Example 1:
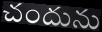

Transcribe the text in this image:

చందును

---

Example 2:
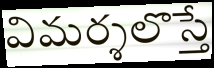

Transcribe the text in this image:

విమర్శలొస్తే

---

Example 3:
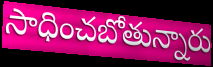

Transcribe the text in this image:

సాధించబోతున్నారు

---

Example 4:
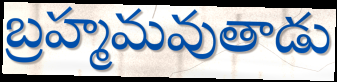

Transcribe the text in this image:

బ్రహ్మమవుతాడు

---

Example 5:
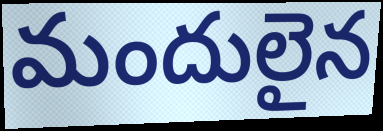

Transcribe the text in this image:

మందులైన